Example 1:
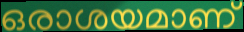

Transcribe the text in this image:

ഒരാശയമാണ്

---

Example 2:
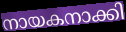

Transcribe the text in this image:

നായകനാക്കി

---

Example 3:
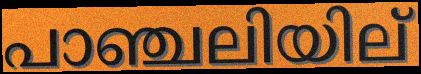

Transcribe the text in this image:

പാഞ്ചലിയില്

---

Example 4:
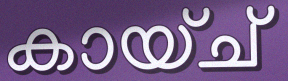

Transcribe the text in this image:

കായ്ച്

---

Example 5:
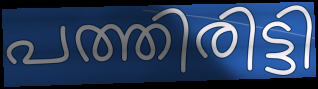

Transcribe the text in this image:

പത്തിരിട്ടി